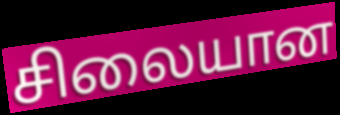
சிலையான